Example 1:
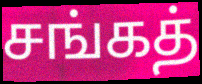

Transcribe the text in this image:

சங்கத்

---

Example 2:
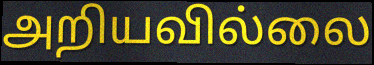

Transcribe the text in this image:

அறியவில்லை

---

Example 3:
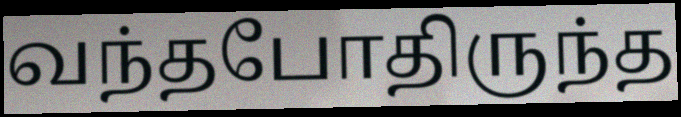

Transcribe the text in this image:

வந்தபோதிருந்த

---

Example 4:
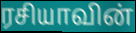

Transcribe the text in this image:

ரசியாவின்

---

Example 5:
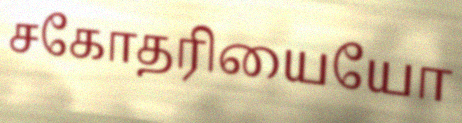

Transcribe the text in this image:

சகோதரியையோ